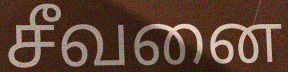
சீவனை